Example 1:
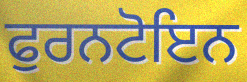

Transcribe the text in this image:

ਫੁਰਨਟੋਇਨ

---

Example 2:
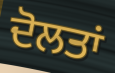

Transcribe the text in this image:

ਦੋਲਤਾਂ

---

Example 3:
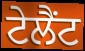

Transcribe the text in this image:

ਟੇਲੈਂਟ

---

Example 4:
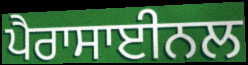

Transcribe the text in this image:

ਪੈਰਾਸਾਈਨਲ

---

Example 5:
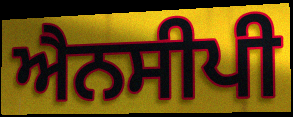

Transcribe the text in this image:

ਐਨਸੀਪੀ